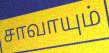
சாவாயும்